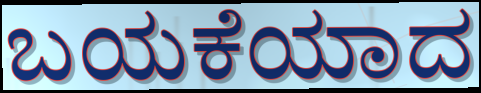
ಬಯಕೆಯಾದ